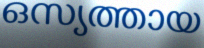
ഒസ്യത്തായ